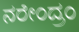
ನರೇಂದ್ರಂ